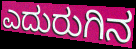
ಎದುರುಗಿನ